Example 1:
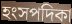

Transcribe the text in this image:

হংসপদিকা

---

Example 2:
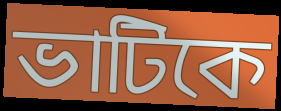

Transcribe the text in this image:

ভাটিকে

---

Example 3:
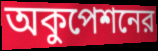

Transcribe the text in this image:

অকুপেশনের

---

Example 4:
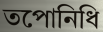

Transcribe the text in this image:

তপোনিধি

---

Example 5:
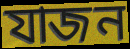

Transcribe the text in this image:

যাজন